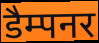
डैम्पनर